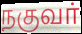
நகுவர்